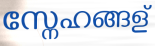
സ്നേഹങ്ങള്